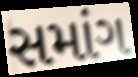
સમાંગ